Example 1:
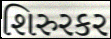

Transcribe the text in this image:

શિરુરકર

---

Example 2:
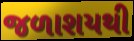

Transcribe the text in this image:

જળાશયથી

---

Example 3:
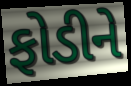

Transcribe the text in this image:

ફોડીને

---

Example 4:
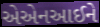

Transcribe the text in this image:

એએનઆઈને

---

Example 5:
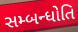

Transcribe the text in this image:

સમ્બન્ધોતિ